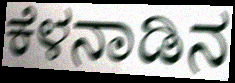
ಕೆಳನಾಡಿನ